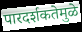
पारदर्शकतेमुळे